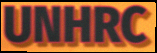
UNHRC